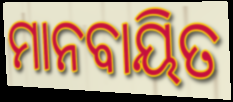
ମାନବାୟିତ